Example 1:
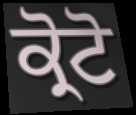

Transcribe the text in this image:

ਕ੍ਰੋਟੋ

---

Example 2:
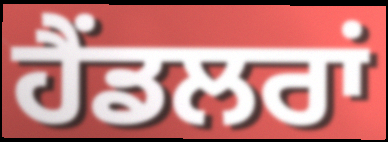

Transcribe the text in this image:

ਹੈਂਡਲਰਾਂ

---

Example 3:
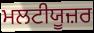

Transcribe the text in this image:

ਮਲਟੀਯੂਜ਼ਰ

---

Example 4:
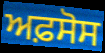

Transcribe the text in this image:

ਅਫ਼ਸੋਸ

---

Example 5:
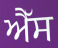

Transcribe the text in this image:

ਐੱਸ